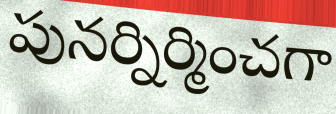
పునర్నిర్మించగా